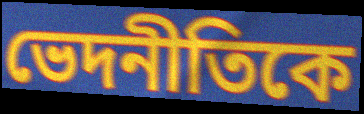
ভেদনীতিকে